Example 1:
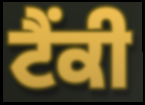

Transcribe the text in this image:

ਟੈਂਕੀ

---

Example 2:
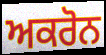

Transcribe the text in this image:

ਅਕਰੋਨ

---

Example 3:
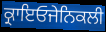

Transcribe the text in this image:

ਕ੍ਰਾਇਓਜੇਨਿਕਲੀ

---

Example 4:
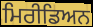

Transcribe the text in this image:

ਮਿਰੀਡਿਅਨ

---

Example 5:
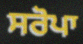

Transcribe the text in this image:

ਸਰੋਪਾ